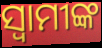
ସ୍ଵାମୀଙ୍କ